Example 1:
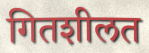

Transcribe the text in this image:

गितशीलत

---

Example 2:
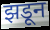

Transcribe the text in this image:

झडून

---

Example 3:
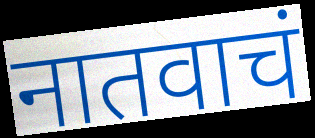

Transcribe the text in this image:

नातवाचं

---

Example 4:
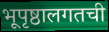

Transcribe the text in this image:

भूपृष्ठालगतची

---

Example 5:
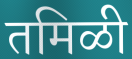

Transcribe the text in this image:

तमिळी